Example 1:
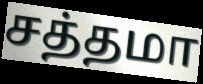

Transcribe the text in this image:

சத்தமா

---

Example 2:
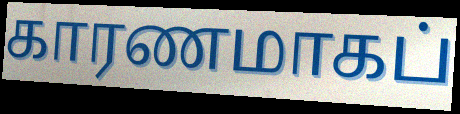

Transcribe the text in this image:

காரணமாகப்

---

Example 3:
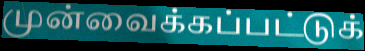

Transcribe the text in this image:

முன்வைக்கப்பட்டுக்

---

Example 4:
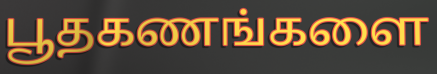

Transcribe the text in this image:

பூதகணங்களை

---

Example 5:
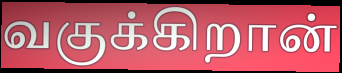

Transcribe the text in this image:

வகுக்கிறான்